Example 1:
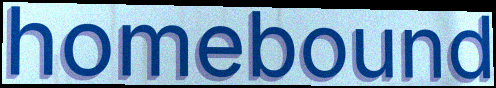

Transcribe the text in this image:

homebound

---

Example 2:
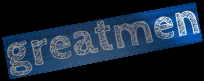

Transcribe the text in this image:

greatmen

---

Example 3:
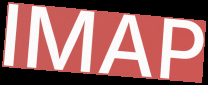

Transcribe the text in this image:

IMAP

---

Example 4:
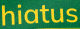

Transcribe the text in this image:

hiatus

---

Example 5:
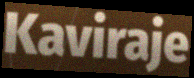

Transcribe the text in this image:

Kaviraje